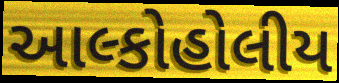
આલ્કોહોલીય